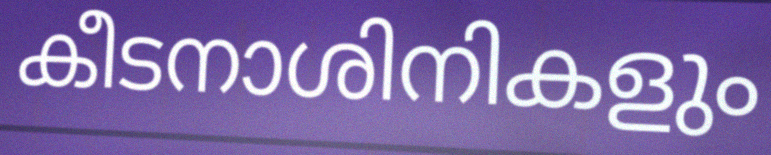
കീടനാശിനികളും